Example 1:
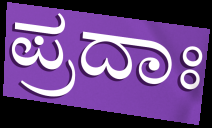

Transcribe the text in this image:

ಪ್ರದಾಃ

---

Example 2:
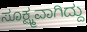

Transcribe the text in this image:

ಸೂಕ್ಷ್ಮವಾಗಿದ್ದು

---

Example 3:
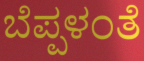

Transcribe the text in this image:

ಬೆಪ್ಪಳಂತೆ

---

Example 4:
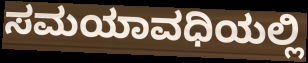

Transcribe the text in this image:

ಸಮಯಾವಧಿಯಲ್ಲಿ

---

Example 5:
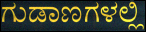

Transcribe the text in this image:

ಗುಡಾಣಗಳಲ್ಲಿ